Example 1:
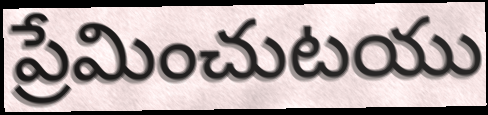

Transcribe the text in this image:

ప్రేమించుటయు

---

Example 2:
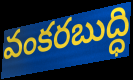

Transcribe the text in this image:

వంకరబుద్ధి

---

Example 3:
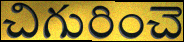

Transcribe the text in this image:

చిగురించె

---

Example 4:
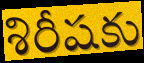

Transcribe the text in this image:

శిరీషకు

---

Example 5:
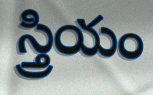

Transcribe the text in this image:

స్త్రియం